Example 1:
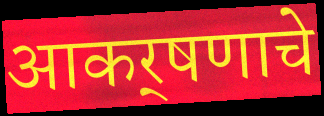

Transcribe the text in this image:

आकर्षणाचे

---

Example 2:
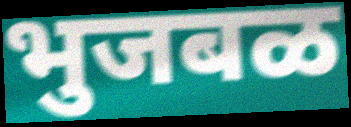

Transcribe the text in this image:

भुजबळ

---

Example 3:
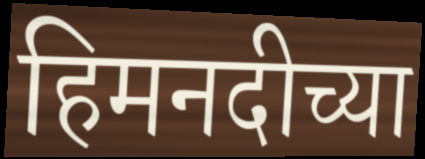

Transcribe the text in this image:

हिमनदीच्या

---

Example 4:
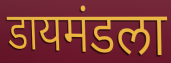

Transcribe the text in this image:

डायमंडला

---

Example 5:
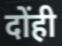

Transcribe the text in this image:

दोंही